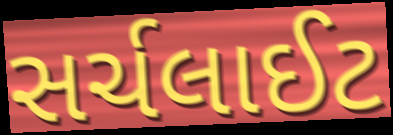
સર્ચલાઈટ